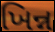
ખિન્ન